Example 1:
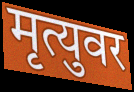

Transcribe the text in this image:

मृत्युवर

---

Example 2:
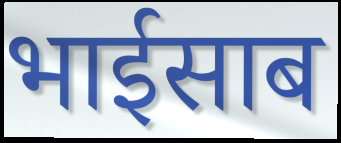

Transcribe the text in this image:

भाईसाब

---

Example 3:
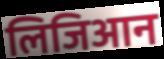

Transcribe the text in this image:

लिजिआन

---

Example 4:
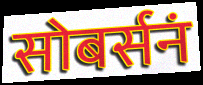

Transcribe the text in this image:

सोबर्सनं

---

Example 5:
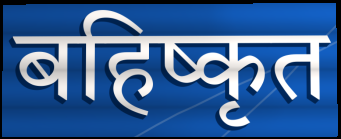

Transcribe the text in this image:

बहिष्कृत